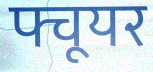
फ्चूयर